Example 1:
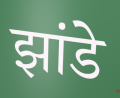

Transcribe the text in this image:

झांडे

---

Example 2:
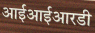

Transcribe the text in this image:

आईआईआरडी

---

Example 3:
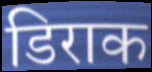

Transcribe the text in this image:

डिराक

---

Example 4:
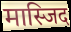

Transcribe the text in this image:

मास्जिद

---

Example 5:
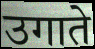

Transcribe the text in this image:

उगाते